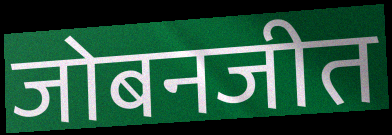
जोबनजीत